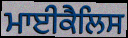
ਮਾਈਕੈਲਿਸ